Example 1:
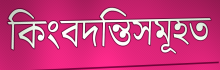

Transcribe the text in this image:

কিংবদন্তিসমূহত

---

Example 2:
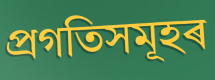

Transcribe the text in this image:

প্ৰগতিসমূহৰ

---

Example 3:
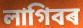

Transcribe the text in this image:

লাগিবৰ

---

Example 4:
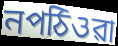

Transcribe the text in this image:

নপঠিওৱা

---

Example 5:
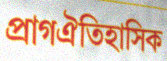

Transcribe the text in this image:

প্ৰাগঐতিহাসিক